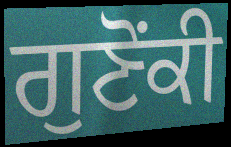
ਗੁਣੋਂਕੀ